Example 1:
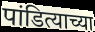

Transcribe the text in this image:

पांडित्याच्या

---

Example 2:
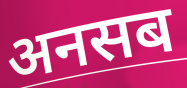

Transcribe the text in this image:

अनसब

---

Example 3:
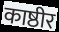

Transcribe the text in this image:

काष्ठीर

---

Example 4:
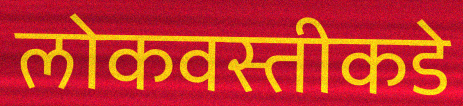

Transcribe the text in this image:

लोकवस्तीकडे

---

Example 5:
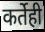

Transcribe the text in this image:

कर्तेही